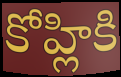
కోహ్లికి